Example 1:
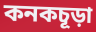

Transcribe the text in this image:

কনকচূড়া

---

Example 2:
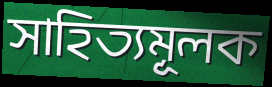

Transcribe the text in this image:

সাহিত্যমূলক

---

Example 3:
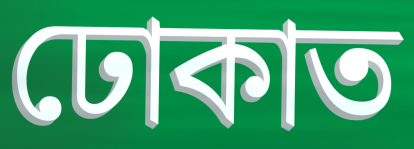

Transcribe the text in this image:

ঢোকাত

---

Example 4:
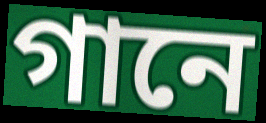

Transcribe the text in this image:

গানে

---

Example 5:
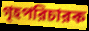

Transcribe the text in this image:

গৃহপরিচারক